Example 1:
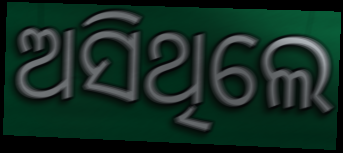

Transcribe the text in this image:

ଅସିଥିଲେ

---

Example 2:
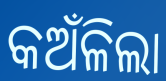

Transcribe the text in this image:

କଅଁଳିଲା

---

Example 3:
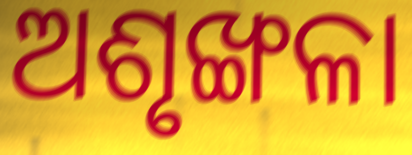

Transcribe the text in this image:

ଅଶୃଙ୍ଖଳା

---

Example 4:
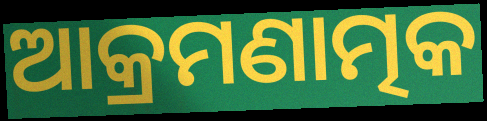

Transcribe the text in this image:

ଆକ୍ରମଣାତ୍ମକ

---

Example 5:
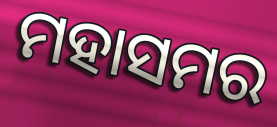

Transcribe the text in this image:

ମହାସମର